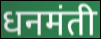
धनमंती